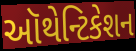
ઑથેન્ટિકેશન